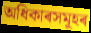
অধিকাৰসমূহৰ